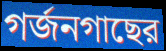
গর্জনগাছের